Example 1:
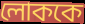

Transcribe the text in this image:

লোককে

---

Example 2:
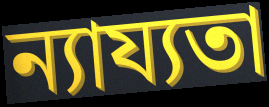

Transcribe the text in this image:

ন্যায্যতা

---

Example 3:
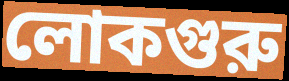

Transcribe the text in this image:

লোকগুরু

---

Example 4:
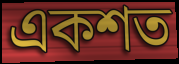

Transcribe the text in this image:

একশত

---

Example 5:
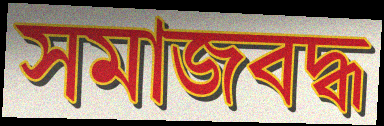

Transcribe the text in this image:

সমাজবদ্ধ